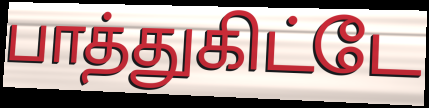
பாத்துகிட்டே